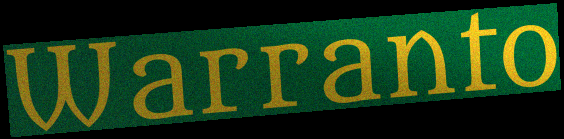
Warranto